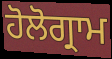
ਹੋਲੋਗ੍ਰਾਮ